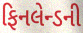
ફિનલેન્ડની